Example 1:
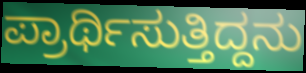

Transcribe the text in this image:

ಪ್ರಾರ್ಥಿಸುತ್ತಿದ್ದನು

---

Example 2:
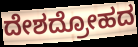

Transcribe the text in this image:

ದೇಶದ್ರೋಹದ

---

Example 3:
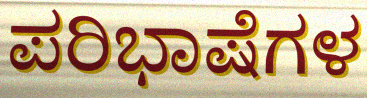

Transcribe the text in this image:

ಪರಿಭಾಷೆಗಳ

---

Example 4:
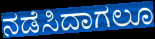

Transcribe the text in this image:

ನಡೆಸಿದಾಗಲೂ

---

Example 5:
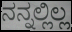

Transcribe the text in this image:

ನನ್ನಲ್ಲಿಲ್ಲ